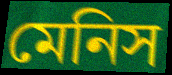
মেনিস